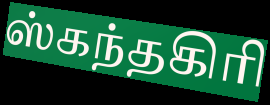
ஸ்கந்தகிரி